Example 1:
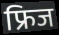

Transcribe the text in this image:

फ्रिज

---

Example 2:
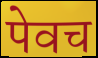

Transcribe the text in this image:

पेवच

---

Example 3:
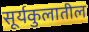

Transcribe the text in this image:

सूर्यकुलातील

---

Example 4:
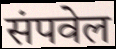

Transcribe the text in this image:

संपवेल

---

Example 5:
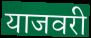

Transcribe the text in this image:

याजवरी